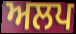
ਅਲਪ